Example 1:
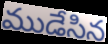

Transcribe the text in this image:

ముడేసిన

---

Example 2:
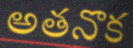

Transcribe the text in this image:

అతనొక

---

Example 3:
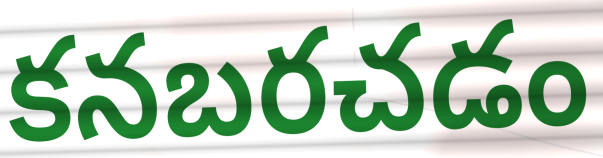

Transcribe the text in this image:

కనబరచడం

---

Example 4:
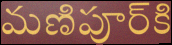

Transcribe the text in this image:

మణిపూర్‌కి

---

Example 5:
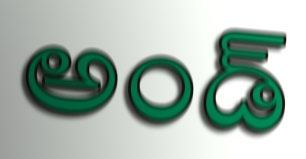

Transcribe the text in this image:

అండ్